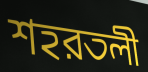
শহরতলী